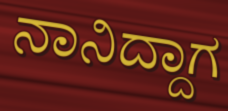
ನಾನಿದ್ದಾಗ